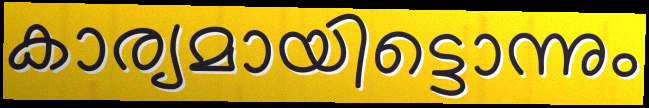
കാര്യമായിട്ടൊന്നും